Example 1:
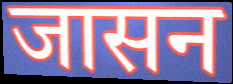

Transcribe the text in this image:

जासन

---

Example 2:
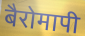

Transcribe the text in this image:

बैरोमापी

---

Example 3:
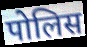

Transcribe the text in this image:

पोलिस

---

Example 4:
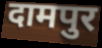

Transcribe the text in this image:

दामपुर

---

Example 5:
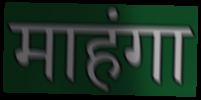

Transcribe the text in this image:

माहंगा